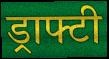
ड्राफ्टी